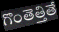
గొంతెత్తితే